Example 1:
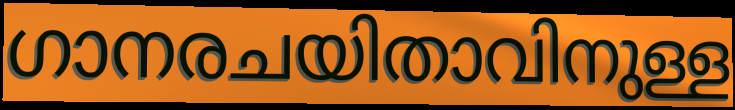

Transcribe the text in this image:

ഗാനരചയിതാവിനുള്ള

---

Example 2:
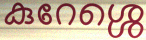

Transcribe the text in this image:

കുറേശ്ശെ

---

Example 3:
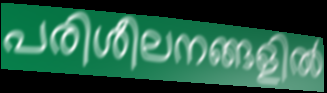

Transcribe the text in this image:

പരിശീലനങ്ങളിൽ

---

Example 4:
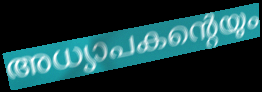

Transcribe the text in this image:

അധ്യാപകന്റെയും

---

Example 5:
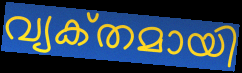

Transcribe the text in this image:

വ്യക്‌തമായി